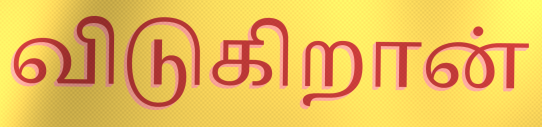
விடுகிறான்